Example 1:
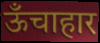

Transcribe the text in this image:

ऊँचाहार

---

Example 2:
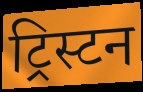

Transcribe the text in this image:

ट्रिस्टन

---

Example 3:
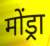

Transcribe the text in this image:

मोंड्रा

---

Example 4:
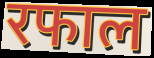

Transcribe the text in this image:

रफाल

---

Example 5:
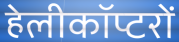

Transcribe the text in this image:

हेलीकॉप्‍टरों